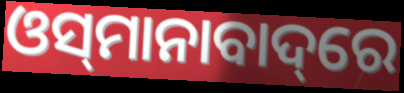
ଓସ୍‌ମାନାବାଦ୍‌ରେ